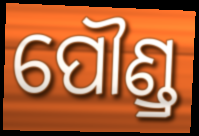
ପୌଣ୍ଡ୍ର